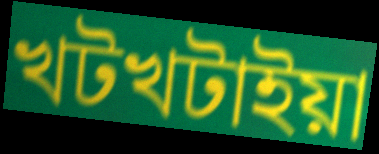
খটখটাইয়া